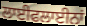
ਲਾਈਫਲਾਈਨਾਂ